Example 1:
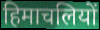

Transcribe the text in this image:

हिमाचलियों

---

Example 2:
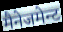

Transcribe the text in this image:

मैनेजमेन्ट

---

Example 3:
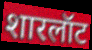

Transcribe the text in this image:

शारलॉट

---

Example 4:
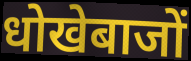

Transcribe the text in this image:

धोखेबाजों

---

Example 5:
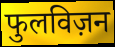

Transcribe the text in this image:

फुलविज़न